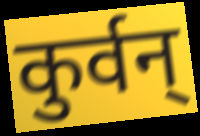
कुर्वन्